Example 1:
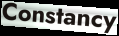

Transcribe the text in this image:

Constancy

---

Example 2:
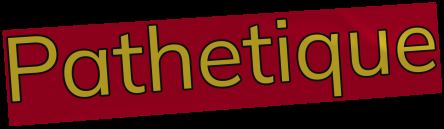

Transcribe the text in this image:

Pathetique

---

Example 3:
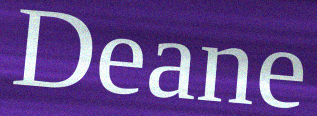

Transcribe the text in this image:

Deane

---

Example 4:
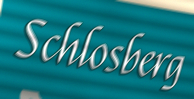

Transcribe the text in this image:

Schlosberg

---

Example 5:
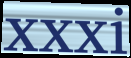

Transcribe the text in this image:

xxxi